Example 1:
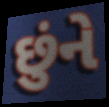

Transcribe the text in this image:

છુંને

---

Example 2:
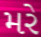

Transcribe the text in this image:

મરે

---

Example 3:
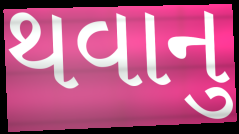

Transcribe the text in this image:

થવાનુ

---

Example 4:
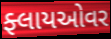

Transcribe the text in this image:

ફ્લાયઓવર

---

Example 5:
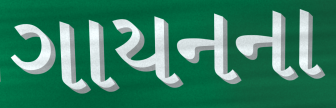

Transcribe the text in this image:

ગાયનના